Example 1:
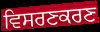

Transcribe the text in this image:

ਵਿਸਰਣਕਰਣ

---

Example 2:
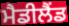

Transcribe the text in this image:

ਮੈਡੀਲੈਂਡ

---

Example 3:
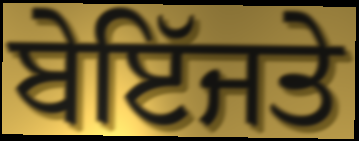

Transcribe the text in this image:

ਬੇਇੱਜਤੇ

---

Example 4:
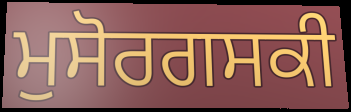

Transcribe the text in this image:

ਮੁਸੋਰਗਸਕੀ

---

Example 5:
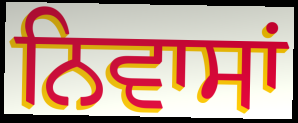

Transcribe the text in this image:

ਨਿਵਾਸਾਂ